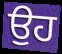
ਉੁਹ